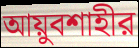
আয়ুবশাহীর